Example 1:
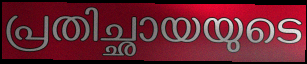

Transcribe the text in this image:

പ്രതിച്ഛായയുടെ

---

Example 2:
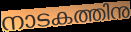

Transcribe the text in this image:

നാടകത്തിനു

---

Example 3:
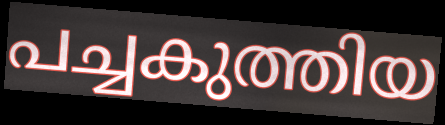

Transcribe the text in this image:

പച്ചകുത്തിയ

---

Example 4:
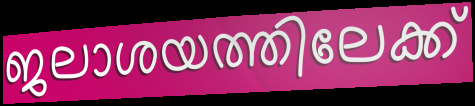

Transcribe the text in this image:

ജലാശയത്തിലേക്ക്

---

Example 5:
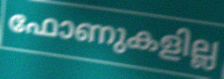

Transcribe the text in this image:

ഫോണുകളില്ല